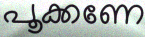
പൂക്കണേ